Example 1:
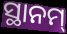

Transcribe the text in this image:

ସ୍ଥାନମ୍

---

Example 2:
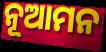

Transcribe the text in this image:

ନୂଆମନ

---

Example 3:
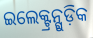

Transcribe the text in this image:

ଇଲେକ୍ଟ୍ରନ୍ଗୁଡ଼ିକ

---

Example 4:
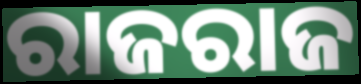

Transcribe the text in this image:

ରାଜରାଜ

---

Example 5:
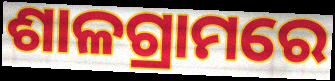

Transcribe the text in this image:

ଶାଳଗ୍ରାମରେ